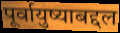
पूर्वायुष्याबद्दल